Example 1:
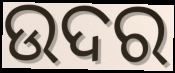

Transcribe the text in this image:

ଉଦର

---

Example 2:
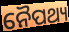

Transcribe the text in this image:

ନୈପଥ୍ୟ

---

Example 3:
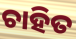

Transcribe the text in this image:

ଚାହିତ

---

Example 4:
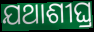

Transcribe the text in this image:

ଯଥାଶୀଘ୍ର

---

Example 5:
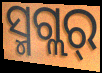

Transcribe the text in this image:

ସ୍ମଗ୍ଲର୍